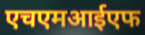
एचएमआईएफ